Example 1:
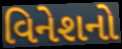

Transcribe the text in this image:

વિનેશનો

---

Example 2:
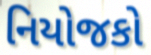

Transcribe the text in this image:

નિયોજકો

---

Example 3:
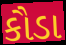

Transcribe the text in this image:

કૌડા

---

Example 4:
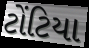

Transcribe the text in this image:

ટોંટિયા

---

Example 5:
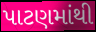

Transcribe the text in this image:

પાટણમાંથી